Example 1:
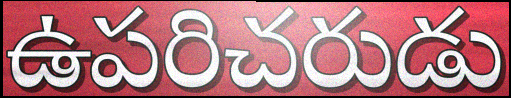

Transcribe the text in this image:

ఉపరిచరుడు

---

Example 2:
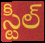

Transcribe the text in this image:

స్టీల్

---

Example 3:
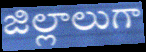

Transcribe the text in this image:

జిల్లాలుగా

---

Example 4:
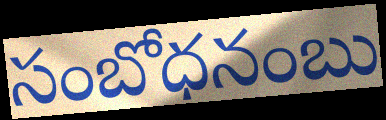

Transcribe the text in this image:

సంబోధనంబు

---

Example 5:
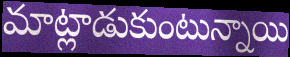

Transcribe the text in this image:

మాట్లాడుకుంటున్నాయి